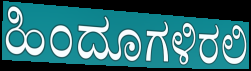
ಹಿಂದೂಗಳಿರಲಿ